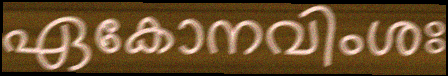
ഏകോനവിംശഃ